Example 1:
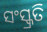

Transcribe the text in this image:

ସଂସ୍କ୍ରତି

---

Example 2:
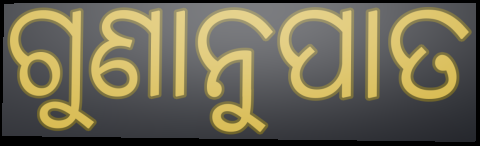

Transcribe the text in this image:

ଗୁଣାନୁପାତ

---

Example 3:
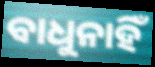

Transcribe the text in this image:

ବାଧୁନାହିଁ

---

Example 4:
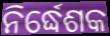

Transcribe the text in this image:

ନିର୍ଦ୍ଧେଶକ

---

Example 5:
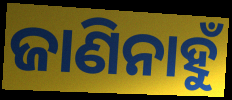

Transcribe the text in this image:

ଜାଣିନାହୁଁ